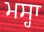
ਮਸ੍ਹਾ